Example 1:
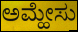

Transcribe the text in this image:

ಅಮ್ಹೇಸು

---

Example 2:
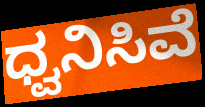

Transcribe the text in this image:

ಧ್ವನಿಸಿವೆ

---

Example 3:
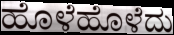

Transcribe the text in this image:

ಹೊಳೆಹೊಳೆದು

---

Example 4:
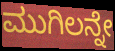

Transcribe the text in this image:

ಮುಗಿಲನ್ನೇ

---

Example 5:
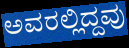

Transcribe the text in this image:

ಅವರಲ್ಲಿದ್ದವು